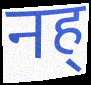
नह्